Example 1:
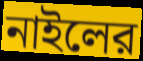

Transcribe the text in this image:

নাইলের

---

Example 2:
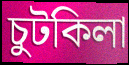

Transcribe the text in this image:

চুটকিলা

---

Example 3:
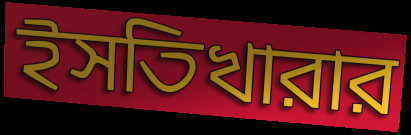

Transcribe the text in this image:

ইসতিখারার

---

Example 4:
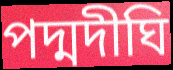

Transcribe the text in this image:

পদ্মদীঘি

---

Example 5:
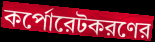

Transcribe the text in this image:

কর্পোরেটকরণের